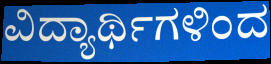
ವಿದ್ಯಾರ್ಥಿಗಳಿಂದ